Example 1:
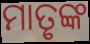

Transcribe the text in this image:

ମାତୃଙ୍କ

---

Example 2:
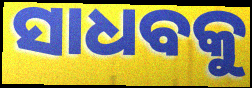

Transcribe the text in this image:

ସାଧବକୁ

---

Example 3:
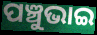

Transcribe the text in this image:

ପଞ୍ଚୁଭାଇ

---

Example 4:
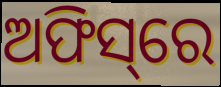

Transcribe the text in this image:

ଅଫିସ୍‌ରେ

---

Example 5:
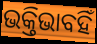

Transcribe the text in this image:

ଭକ୍ତିଭାବହିଁ